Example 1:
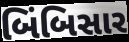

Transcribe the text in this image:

બિંબિસાર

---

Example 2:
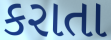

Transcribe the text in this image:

કરાતા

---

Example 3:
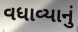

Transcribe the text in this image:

વધાવ્યાનું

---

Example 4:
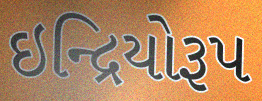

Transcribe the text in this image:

ઇન્દ્રિયોરૂપ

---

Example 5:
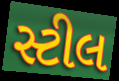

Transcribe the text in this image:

સ્ટીલ